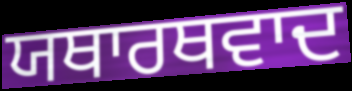
ਯਥਾਰਥਵਾਦ